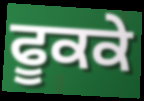
ਫੂਕਕੇ